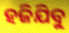
ହଜିଯିବୁ